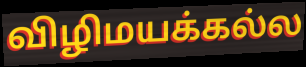
விழிமயக்கல்ல